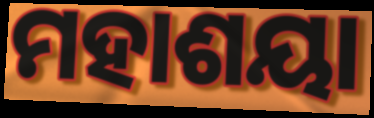
ମହାଶୟା